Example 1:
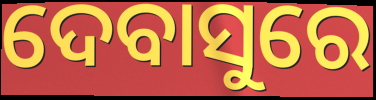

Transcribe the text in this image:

ଦେବାସୁରେ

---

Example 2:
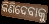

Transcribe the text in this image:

କିଣିଦେବାକୁ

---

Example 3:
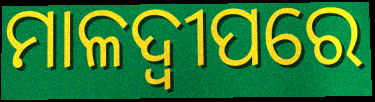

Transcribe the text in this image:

ମାଳଦ୍ବୀପରେ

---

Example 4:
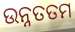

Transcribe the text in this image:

ଉନ୍ନତତମ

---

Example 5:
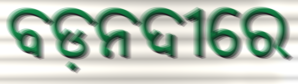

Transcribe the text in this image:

ବଡ଼ନଦୀରେ